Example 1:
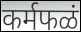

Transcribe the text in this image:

कर्मफळं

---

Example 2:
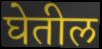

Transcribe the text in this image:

घेतील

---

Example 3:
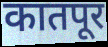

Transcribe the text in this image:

कातपूर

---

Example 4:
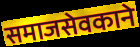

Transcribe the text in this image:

समाजसेवकाने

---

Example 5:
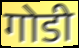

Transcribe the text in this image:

गोडी